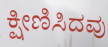
ಕ್ಷೀಣಿಸಿದವು